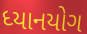
ધ્યાનયોગ